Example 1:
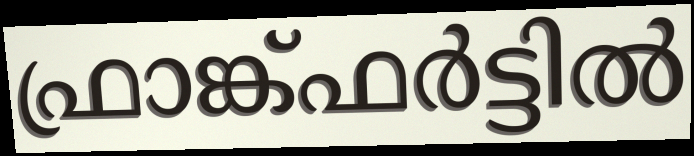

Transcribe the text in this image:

ഫ്രാങ്ക്ഫർട്ടിൽ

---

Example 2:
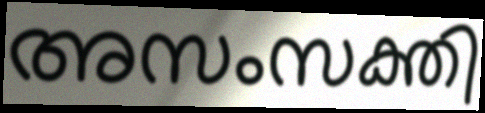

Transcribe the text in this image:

അസംസക്തി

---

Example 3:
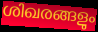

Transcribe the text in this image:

ശിഖരങ്ങളും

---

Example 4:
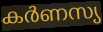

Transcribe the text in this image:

കർണസ്യ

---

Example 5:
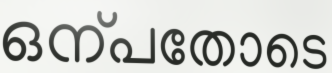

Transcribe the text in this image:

ഒന്പതോടെ